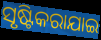
ସୃଷ୍ଟିକରାଯାଇ